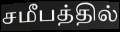
சமீபத்தில்